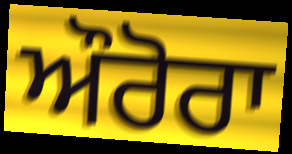
ਔਰੋਰਾ